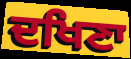
ਦਖਿਣਾ